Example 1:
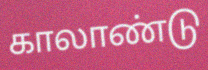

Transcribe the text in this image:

காலாண்டு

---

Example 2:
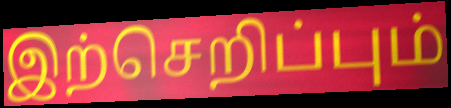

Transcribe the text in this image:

இற்செறிப்பும்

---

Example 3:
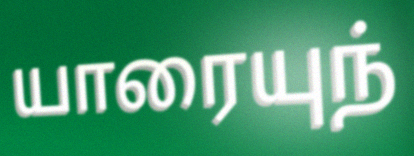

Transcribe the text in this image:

யாரையுந்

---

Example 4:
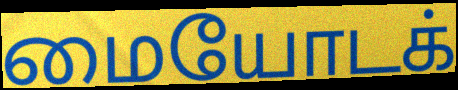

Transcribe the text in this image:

மையோடக்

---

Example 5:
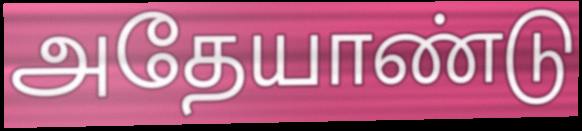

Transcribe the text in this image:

அதேயாண்டு